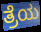
ತ್ರೆಯ